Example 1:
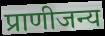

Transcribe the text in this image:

प्राणीजन्य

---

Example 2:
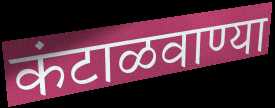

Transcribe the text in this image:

कंटाळवाण्या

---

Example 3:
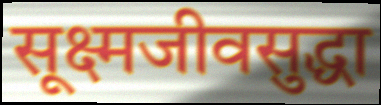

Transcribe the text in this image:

सूक्ष्मजीवसुद्धा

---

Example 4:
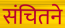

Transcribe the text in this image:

संचितने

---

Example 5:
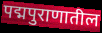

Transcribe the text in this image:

पद्मपुराणातील